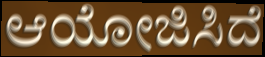
ಆಯೋಜಿಸಿದೆ